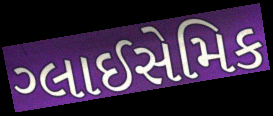
ગ્લાઈસેમિક